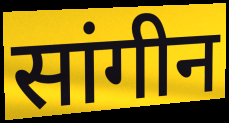
सांगीन